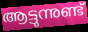
ആട്ടുന്നുണ്ട്